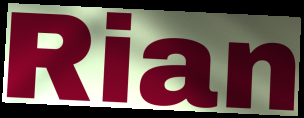
Rian